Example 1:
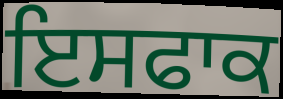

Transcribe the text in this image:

ਇਸਫਾਕ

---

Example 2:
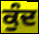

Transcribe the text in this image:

ਕੁੰਦ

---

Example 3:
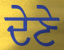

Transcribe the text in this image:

ਦੇਣੇ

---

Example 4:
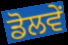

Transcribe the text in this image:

ਡੋਲਵੇਂ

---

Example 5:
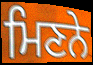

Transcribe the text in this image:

ਮਿਣਨੇ